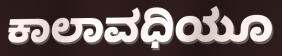
ಕಾಲಾವಧಿಯೂ